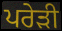
ਪਰੇੜੀ